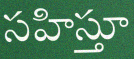
సహిస్తూ